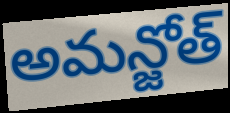
అమన్జోత్